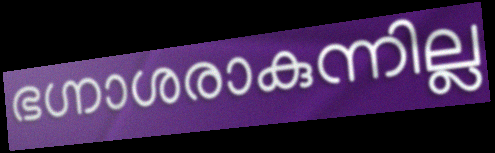
ഭഗ്നാശരാകുന്നില്ല